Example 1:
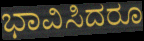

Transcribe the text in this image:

ಭಾವಿಸಿದರೂ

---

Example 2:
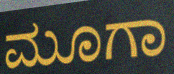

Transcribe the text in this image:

ಮೂಗಾ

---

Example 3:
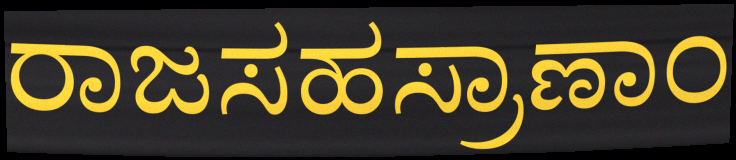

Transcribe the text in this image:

ರಾಜಸಹಸ್ರಾಣಾಂ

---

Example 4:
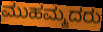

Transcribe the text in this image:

ಮುಹಮ್ಮದರು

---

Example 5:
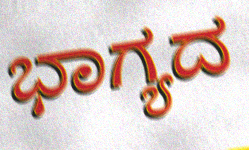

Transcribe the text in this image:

ಭಾಗ್ಯದ